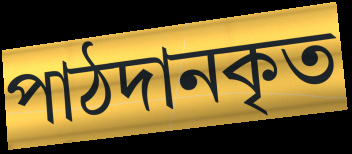
পাঠদানকৃত